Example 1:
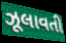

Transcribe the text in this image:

ઝૂલાવતી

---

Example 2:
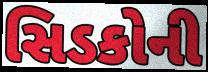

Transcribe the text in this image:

સિડકોની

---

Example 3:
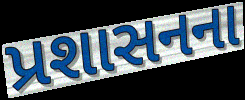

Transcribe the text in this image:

પ્રશાસનના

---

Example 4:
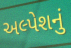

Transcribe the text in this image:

અલ્પેશનું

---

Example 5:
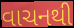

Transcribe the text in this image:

વાચનથી